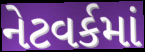
નેટવર્કમાં